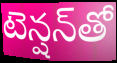
టెన్షన్‌తో